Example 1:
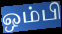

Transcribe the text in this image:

ஒம்பி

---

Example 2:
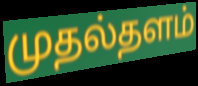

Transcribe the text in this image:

முதல்தளம்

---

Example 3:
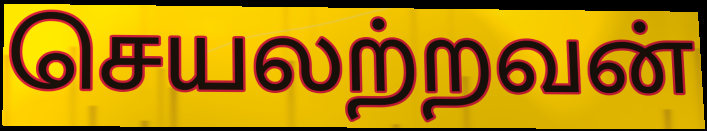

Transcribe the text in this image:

செயலற்றவன்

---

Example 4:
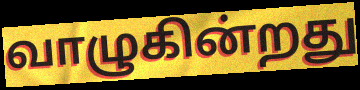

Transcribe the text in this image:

வாழுகின்றது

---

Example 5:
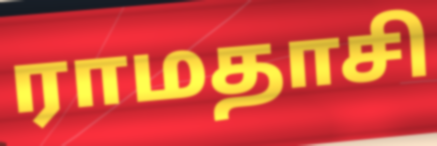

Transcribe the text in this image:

ராமதாசி